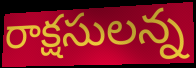
రాక్షసులన్న